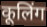
कूलिंग